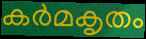
കർമകൃതം